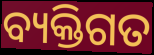
ବ୍ୟକ୍ତିଗତ